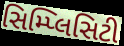
સિમ્પ્લિસિટી